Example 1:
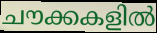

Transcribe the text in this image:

ചൗക്കകളിൽ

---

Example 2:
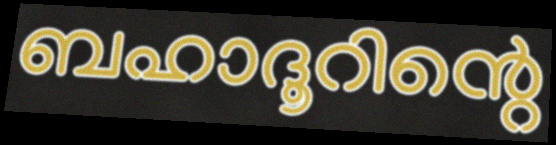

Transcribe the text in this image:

ബഹാദൂറിന്റെ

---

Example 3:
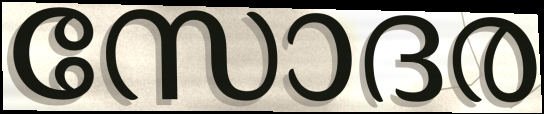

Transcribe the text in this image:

സോദര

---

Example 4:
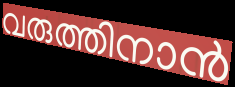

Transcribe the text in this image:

വരുത്തിനാൻ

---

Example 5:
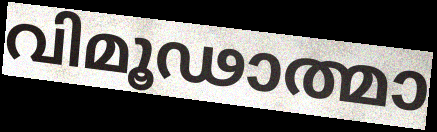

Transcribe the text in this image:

വിമൂഢാത്മാ